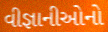
વીજ્ઞાનીઓનો